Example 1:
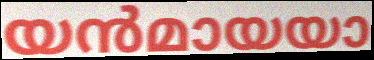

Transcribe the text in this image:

യൻമായയാ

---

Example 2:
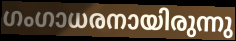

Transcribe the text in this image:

ഗംഗാധരനായിരുന്നു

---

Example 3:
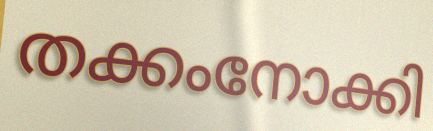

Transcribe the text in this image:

തക്കംനോക്കി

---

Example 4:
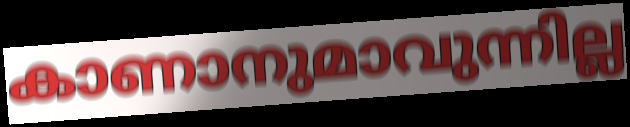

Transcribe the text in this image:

കാണാനുമാവുന്നില്ല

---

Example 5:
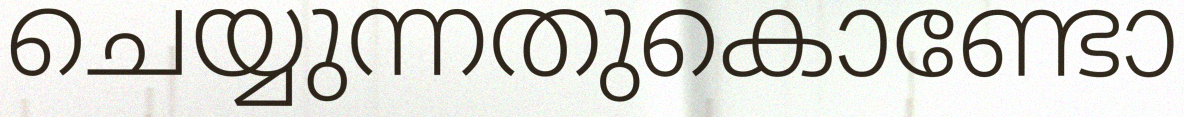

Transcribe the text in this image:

ചെയ്യുന്നതുകൊണ്ടോ